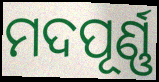
ମଦପୂର୍ଣ୍ଣ